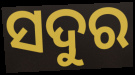
ସଦୁର